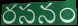
రసనం